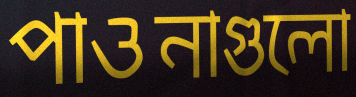
পাওনাগুলো